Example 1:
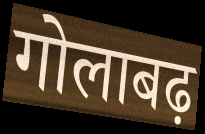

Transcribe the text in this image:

गोलाबढ़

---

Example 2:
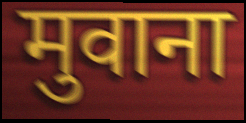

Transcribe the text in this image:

मुवाना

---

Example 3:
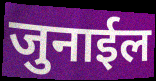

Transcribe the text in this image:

जुनाईल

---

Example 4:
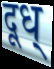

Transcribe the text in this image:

दूध्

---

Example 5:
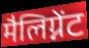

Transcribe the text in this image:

मैलिग्नेंट